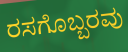
ರಸಗೊಬ್ಬರವು